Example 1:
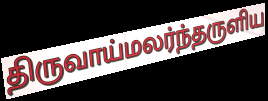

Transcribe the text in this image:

திருவாய்மலர்ந்தருளிய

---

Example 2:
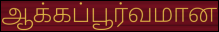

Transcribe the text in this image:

ஆக்கப்பூர்வமான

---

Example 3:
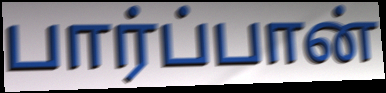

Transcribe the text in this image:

பார்ப்பான்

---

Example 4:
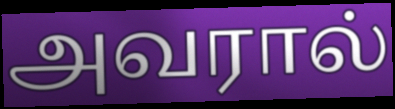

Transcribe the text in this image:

அவரால்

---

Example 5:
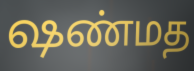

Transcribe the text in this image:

ஷண்மத